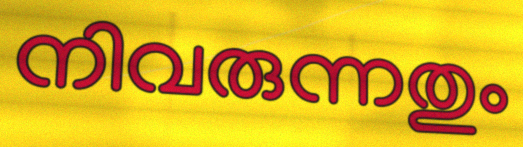
നിവരുന്നതും